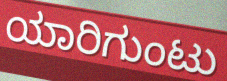
ಯಾರಿಗುಂಟು